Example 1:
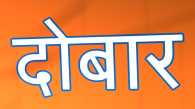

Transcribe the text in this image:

दोबार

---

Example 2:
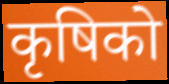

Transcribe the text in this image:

कृषिको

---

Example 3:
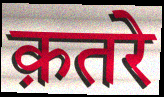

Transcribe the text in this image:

क़तरे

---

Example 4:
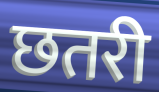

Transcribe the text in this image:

छतरी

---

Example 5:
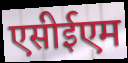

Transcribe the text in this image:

एसीईएम